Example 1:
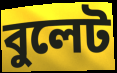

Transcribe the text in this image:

বুলেট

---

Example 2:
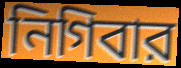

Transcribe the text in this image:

নিগিবার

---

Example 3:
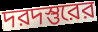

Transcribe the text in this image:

দরদস্তুরের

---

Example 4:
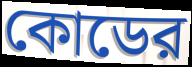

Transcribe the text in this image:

কোডের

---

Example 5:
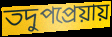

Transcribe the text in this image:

তদুপপ্রেয়ায়